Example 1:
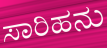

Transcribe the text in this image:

ಸಾರಿಹನು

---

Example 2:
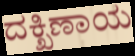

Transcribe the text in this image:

ದಕ್ಖಿಣಾಯ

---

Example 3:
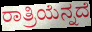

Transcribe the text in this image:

ರಾತ್ರಿಯೆನ್ನದೆ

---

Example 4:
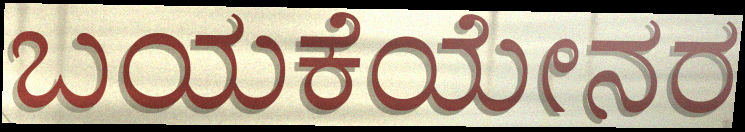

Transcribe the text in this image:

ಬಯಕೆಯೇನರ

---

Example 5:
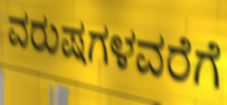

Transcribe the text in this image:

ವರುಷಗಳವರೆಗೆ